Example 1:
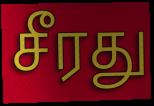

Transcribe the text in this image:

சீரது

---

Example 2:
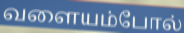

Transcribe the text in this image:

வளையம்போல்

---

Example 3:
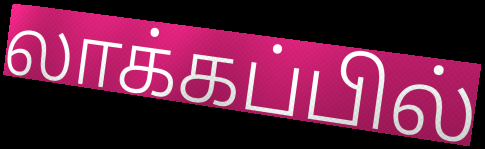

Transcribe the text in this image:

லாக்கப்பில்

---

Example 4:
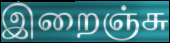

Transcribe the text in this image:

இறைஞ்சு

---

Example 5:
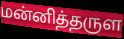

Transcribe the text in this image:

மன்னித்தருள